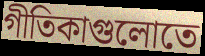
গীতিকাগুলোতে